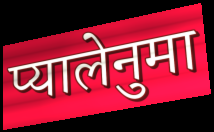
प्यालेनुमा